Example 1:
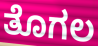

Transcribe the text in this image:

ತೊಗಲ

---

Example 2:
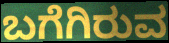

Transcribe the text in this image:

ಬಗೆಗಿರುವ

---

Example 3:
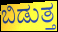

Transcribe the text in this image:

ಬಿಡುತ್ತ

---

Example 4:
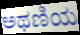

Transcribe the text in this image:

ಅಥಣಿಯ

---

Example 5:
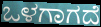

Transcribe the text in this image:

ಒಳಗಾಗದೆ